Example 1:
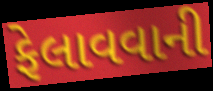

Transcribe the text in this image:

ફેલાવવાની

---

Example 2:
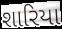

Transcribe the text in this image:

શારિયા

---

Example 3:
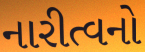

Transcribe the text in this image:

નારીત્વનો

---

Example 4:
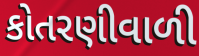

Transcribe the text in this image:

કોતરણીવાળી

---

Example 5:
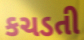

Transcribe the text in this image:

કચડતી